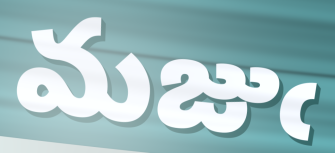
మజుఁ